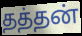
தத்தன்